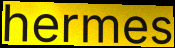
hermes